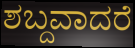
ಶಬ್ದವಾದರೆ